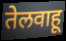
तेलवाहू